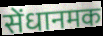
सेंधानमक